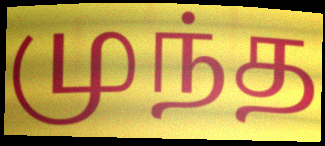
முந்த